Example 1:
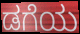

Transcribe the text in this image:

ಡಗೆಯ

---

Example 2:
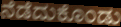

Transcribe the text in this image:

ನೆಡೆದುಕೊಂಡು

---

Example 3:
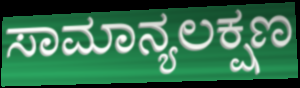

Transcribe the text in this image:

ಸಾಮಾನ್ಯಲಕ್ಷಣ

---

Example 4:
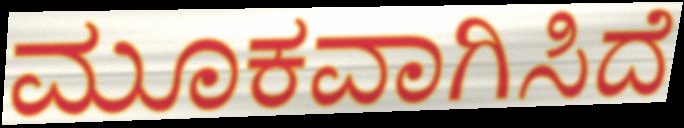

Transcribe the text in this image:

ಮೂಕವಾಗಿಸಿದೆ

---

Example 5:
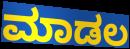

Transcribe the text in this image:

ಮಾಡಲ